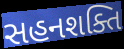
સહનશક્તિ